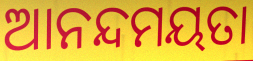
ଆନନ୍ଦମୟତା